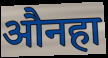
औनहा